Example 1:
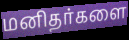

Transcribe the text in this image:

மனிதர்களை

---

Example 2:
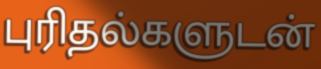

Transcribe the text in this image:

புரிதல்களுடன்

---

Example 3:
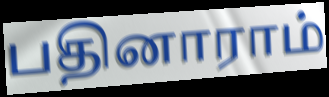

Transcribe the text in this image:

பதினாராம்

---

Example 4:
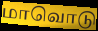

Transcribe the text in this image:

மாவொடு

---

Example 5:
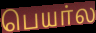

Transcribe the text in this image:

பெயர்ல